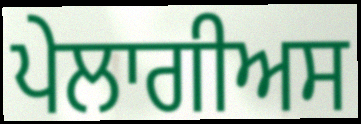
ਪੇਲਾਗੀਅਸ